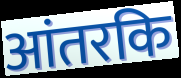
आंतरकि